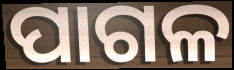
ପାଗଳ